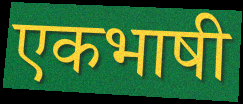
एकभाषी